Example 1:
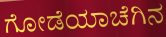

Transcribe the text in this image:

ಗೋಡೆಯಾಚೆಗಿನ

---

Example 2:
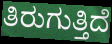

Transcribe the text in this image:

ತಿರುಗುತ್ತಿದೆ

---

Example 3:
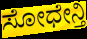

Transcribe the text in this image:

ಸೋಧೇನ್ತಿ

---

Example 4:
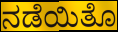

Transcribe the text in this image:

ನಡೆಯಿತೊ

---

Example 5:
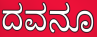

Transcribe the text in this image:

ದವನೂ